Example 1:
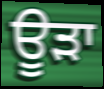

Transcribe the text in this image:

ਊੜਾ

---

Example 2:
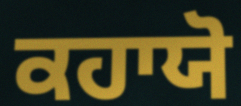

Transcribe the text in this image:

ਕਹਾਯੋ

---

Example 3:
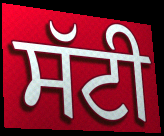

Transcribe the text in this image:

ਸੱਟੀ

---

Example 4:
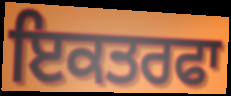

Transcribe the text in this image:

ਇਕਤਰਫਾ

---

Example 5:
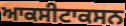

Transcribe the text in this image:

ਆਕਸੀਟਾਕਸਨ